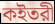
কইতরী